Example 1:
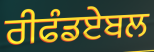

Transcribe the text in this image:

ਰੀਫੰਡਏਬਲ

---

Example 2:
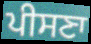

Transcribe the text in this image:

ਪੀਸਣਾ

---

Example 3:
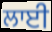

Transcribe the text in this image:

ਲਾਈ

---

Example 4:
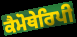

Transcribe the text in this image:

ਕੈਮੋਥੇਰਿਪੀ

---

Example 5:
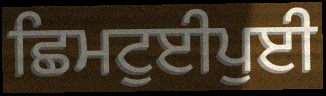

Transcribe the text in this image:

ਛਿਮਟੁਈਪੁਈ